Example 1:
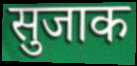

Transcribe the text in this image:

सुजाक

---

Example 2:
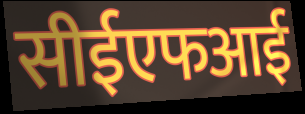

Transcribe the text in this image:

सीईएफआई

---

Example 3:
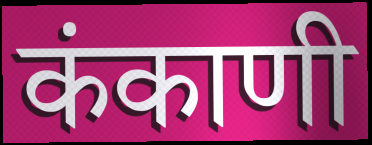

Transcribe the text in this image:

कंकाणी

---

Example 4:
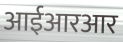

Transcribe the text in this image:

आईआरआर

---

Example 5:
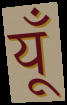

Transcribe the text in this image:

यूँ